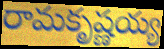
రామకృష్ణయ్య